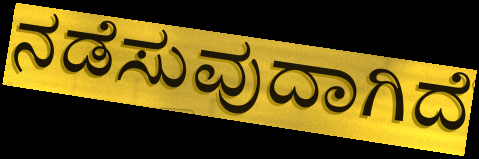
ನಡೆಸುವುದಾಗಿದೆ